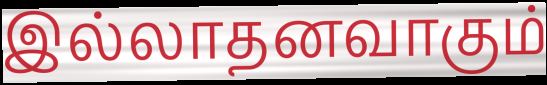
இல்லாதனவாகும்